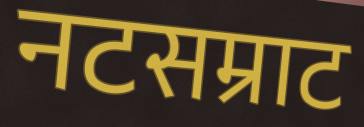
नटसम्राट